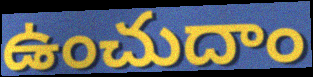
ఉంచుదాం